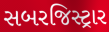
સબરજિસ્ટ્રાર